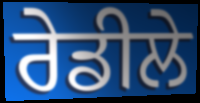
ਰੇਡੀਲੇ